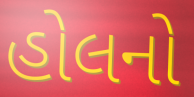
હોલનો